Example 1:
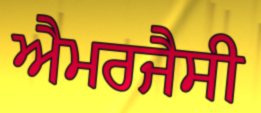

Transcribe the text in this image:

ਐਮਰਜੈਸੀ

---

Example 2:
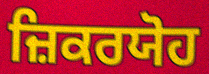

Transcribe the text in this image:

ਜ਼ਿਕਰਯੋਹ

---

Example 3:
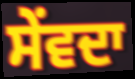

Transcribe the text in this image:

ਸੇਂਵਦਾ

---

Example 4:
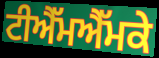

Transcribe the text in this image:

ਟੀਐੱਮਐੱਮਕੇ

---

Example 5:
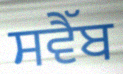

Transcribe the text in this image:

ਸਵੈੱਬ